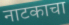
नाटकाचा